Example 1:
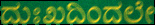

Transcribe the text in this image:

ದುಃಖದಿಂದಲೇ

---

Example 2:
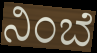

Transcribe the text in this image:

ನಿಂಬೆ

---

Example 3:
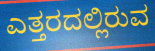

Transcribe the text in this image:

ಎತ್ತರದಲ್ಲಿರುವ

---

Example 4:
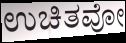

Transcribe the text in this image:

ಉಚಿತವೋ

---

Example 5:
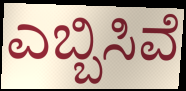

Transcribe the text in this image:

ಎಬ್ಬಿಸಿವೆ